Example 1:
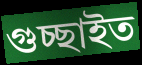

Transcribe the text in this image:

গুচ্ছাইত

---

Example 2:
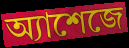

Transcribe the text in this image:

অ্যাশেজে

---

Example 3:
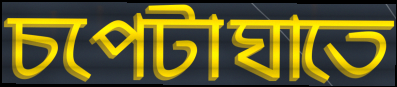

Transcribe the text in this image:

চপেটাঘাতে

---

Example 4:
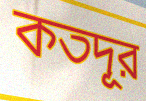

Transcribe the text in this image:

কতদূর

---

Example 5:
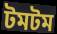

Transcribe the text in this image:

টমটম